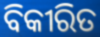
ବିକୀରିତ